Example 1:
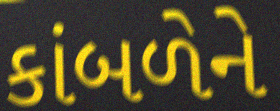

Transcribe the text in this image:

કાંબળેને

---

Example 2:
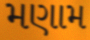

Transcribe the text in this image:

મણામ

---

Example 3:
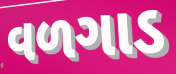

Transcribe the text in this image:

વળગાડ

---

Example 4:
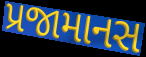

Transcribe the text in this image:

પ્રજામાનસ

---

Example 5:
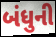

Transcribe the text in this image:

બંધુની